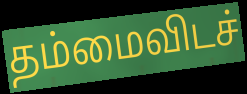
தம்மைவிடச்